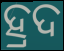
ହ୍ରଦ